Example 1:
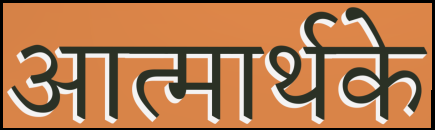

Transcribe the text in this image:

आत्मार्थके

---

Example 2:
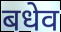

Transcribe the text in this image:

बधेव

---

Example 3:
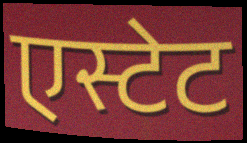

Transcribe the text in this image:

एस्टेट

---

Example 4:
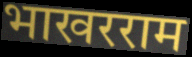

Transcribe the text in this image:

भाखरराम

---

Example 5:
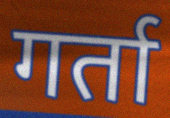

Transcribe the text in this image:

गर्ता